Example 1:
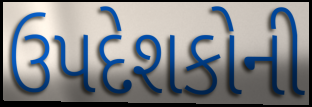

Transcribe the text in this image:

ઉપદેશકોની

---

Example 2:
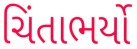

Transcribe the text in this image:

ચિંતાભર્યો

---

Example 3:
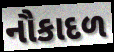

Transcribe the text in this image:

નૌકાદળ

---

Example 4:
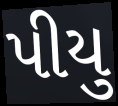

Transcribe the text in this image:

પીયુ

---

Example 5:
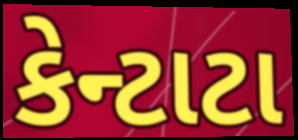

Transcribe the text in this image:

કેન્ટાટા